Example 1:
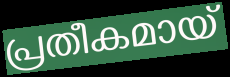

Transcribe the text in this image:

പ്രതീകമായ്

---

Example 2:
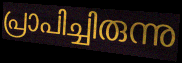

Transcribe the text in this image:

പ്രാപിച്ചിരുന്നു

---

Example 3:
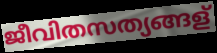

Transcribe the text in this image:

ജീവിതസത്യങ്ങള്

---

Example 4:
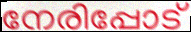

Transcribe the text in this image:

നേരിപ്പോട്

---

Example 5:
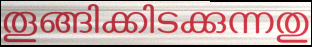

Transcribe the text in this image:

തൂങ്ങിക്കിടക്കുന്നതു